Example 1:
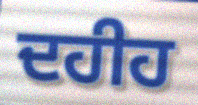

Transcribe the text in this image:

ਦਹੀਹ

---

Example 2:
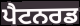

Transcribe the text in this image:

ਪੈਟਨਰਡ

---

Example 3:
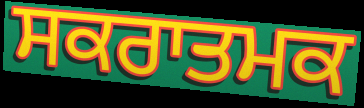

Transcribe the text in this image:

ਸਕਰਾਤਮਕ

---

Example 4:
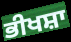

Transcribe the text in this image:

ਭੀਖਸ਼ਾ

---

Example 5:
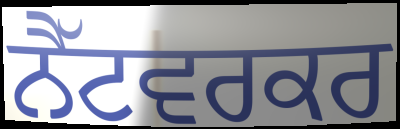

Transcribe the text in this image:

ਨੈੱਟਵਰਕਰ